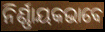
ନିର୍ଣ୍ଣାୟକଭାବେ